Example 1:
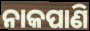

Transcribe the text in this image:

ନାକପାଣି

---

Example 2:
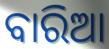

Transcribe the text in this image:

ବାରିଆ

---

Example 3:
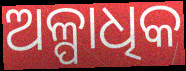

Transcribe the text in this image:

ଅଳ୍ପାଧିକ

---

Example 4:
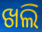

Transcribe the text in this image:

ଖଲି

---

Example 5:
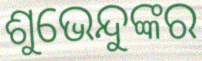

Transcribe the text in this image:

ଶୁଭେନ୍ଦୁଙ୍କର